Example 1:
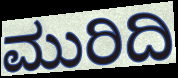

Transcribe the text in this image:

ಮುರಿದಿ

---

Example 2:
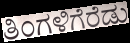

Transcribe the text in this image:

ತಿಂಗಳಿಗೆರೆಡು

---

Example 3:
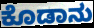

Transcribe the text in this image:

ಕೊಡಾನು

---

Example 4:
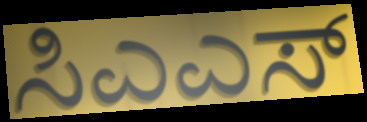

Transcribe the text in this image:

ಸಿಎಎಸ್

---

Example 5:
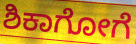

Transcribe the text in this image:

ಶಿಕಾಗೋಗೆ